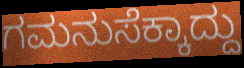
ಗಮನುಸೆಕ್ಕಾದ್ದು